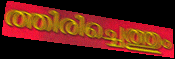
ത്തിരിച്ചെത്തും